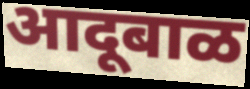
आदूबाळ